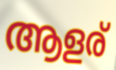
ആളര്